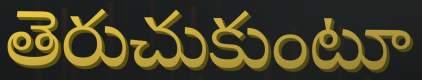
తెరుచుకుంటూ